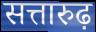
सत्तारुढ़